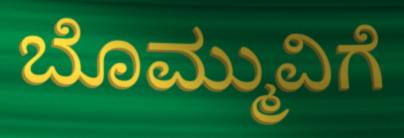
ಬೊಮ್ಮುವಿಗೆ